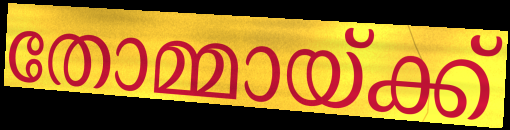
തോമ്മായ്ക്ക്